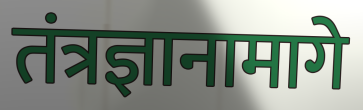
तंत्रज्ञानामागे